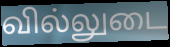
வில்லுடை